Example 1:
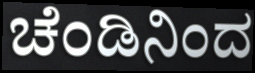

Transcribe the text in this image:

ಚೆಂಡಿನಿಂದ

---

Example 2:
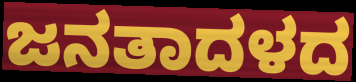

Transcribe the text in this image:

ಜನತಾದಳದ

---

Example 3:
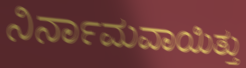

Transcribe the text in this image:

ನಿರ್ನಾಮವಾಯಿತ್ತು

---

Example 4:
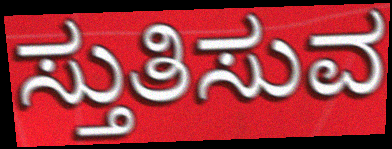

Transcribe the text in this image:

ಸ್ತುತಿಸುವ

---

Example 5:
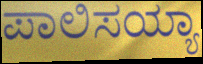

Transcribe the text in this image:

ಪಾಲಿಸಯ್ಯಾ